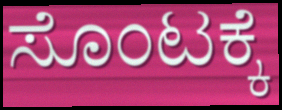
ಸೊಂಟಕ್ಕೆ